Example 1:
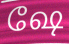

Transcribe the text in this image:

ஷே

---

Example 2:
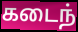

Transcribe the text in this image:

கடைந்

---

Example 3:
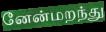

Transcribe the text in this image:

னேன்மறந்து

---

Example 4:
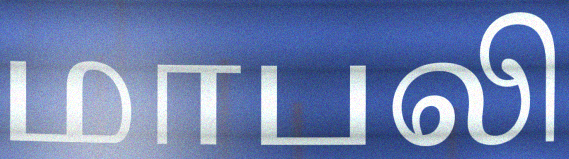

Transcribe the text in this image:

மாபலி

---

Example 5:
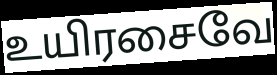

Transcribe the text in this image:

உயிரசைவே